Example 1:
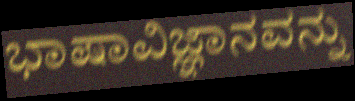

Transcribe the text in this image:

ಭಾಷಾವಿಜ್ಞಾನವನ್ನು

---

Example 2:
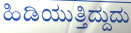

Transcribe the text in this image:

ಹಿಡಿಯುತ್ತಿದ್ದುದು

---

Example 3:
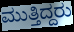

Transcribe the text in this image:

ಮುತ್ತಿದ್ದರು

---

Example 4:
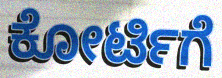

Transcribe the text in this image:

ಕೋರ್ಟಿಗೆ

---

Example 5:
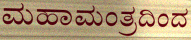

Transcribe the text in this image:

ಮಹಾಮಂತ್ರದಿಂದ